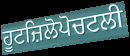
ਹੂਟਜ਼ਿਲੋਪੋਚਟਲੀ